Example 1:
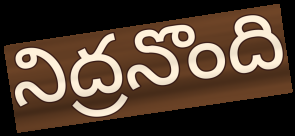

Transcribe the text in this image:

నిద్రనొంది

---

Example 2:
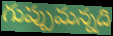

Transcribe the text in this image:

గుప్పుమన్నది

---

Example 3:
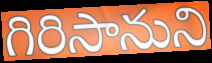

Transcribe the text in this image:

గిరిసానుని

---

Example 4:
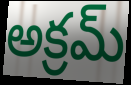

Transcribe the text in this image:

అక్రమ్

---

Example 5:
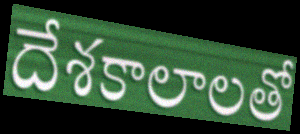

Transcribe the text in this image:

దేశకాలాలతో